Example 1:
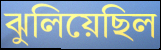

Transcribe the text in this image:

ঝুলিয়েছিল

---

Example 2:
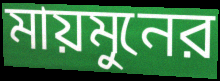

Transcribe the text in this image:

মায়মুনের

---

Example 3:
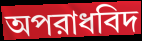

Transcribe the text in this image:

অপরাধবিদ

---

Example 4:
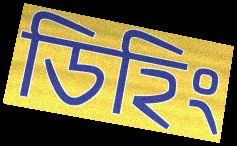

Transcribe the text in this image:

ডিহিং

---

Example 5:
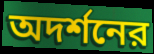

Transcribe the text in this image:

অদর্শনের